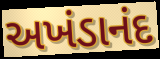
અખંડાનંદ